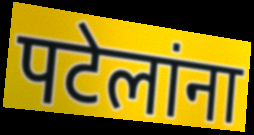
पटेलांना